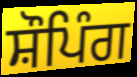
ਸ਼ੌਪਿੰਗ